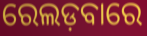
ରେଲଡ଼ବାରେ